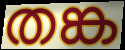
തങ്ക